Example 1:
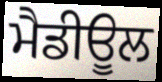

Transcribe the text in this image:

ਮੈਡੀਊਲ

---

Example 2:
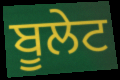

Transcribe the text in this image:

ਬੂਲੇਟ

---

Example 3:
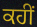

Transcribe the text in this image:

ਕਹੀਂ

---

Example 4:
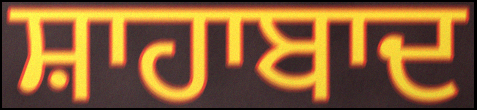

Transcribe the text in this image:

ਸ਼ਾਹਾਬਾਦ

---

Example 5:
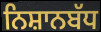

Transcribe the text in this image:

ਨਿਸ਼ਾਨਬੱਧ